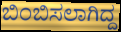
ಬಿಂಬಿಸಲಾಗಿದ್ದ